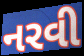
નરવી